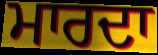
ਮਾਰਦਾ